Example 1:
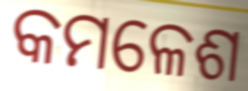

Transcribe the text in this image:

କମଳେଶ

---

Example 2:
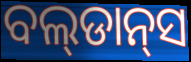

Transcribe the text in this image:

ବଲ୍‌ଡାନ୍‌ସ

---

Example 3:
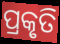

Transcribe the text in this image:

ପ୍ରକୃତି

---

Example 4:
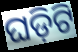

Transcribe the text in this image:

ଘଡ଼ିଟି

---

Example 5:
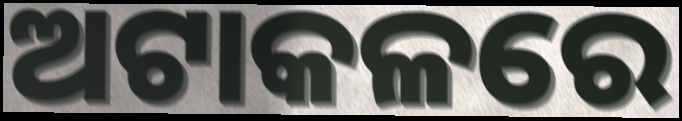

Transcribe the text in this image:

ଅଟାକଳରେ